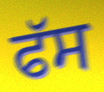
ਫੱਸ